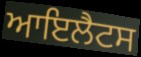
ਆਇਲੈਟਸ